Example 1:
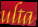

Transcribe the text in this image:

ulta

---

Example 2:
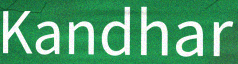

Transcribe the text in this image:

Kandhar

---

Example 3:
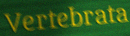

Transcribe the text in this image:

Vertebrata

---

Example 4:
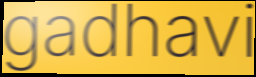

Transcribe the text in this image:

gadhavi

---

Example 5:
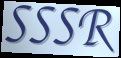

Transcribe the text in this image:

SSSR